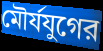
মৌর্যযুগের